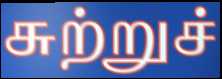
சுற்றுச்